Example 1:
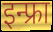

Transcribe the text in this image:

इन्फ्रा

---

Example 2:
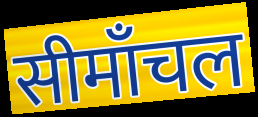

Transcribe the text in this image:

सीमाँचल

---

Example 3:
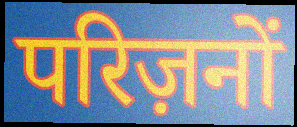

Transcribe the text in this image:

परिज़नों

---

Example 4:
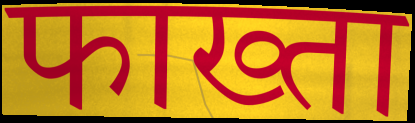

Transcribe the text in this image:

फाख्ता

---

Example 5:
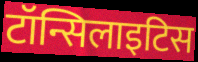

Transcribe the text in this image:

टॉन्सिलाइटिस